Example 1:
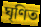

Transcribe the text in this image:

ঘৃণিত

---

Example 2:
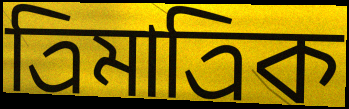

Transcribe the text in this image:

ত্রিমাত্রিক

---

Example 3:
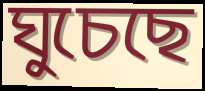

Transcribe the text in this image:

ঘুচেছে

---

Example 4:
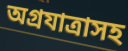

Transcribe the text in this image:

অগ্রযাত্রাসহ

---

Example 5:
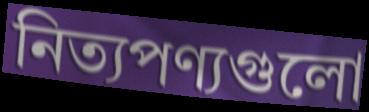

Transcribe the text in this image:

নিত্যপণ্যগুলো